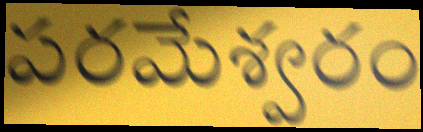
పరమేశ్వరం